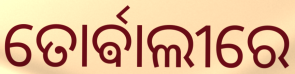
ତୋର୍ଵାଲୀରେ